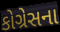
કોગ્રેસના